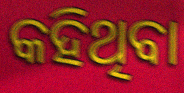
କହିଥିବା